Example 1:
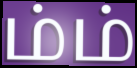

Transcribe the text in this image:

ம்ம்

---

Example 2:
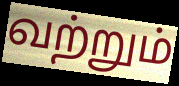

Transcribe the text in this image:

வற்றும்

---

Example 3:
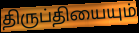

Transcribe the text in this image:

திருப்தியையும்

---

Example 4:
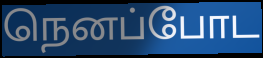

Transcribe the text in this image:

நெனப்போட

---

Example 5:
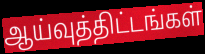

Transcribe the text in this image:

ஆய்வுத்திட்டங்கள்